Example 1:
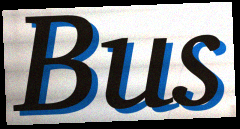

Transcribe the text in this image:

Bus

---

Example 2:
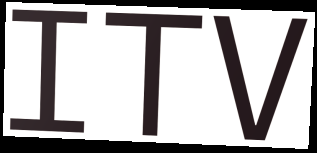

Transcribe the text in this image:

ITV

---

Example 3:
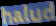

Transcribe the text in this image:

halud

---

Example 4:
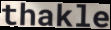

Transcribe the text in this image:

thakle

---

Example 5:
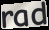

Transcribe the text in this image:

rad